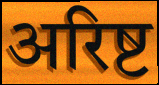
अरिष्ट